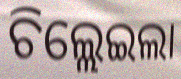
ଚିଲ୍ଲେଇଲା